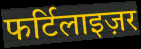
फर्टिलाइज़र